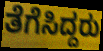
ತೆಗೆಸಿದ್ದರು